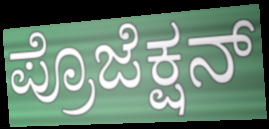
ಪ್ರೊಜೆಕ್ಷನ್